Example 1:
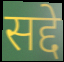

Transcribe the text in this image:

सद्दे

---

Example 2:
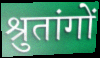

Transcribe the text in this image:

श्रुतांगों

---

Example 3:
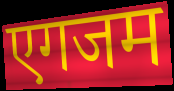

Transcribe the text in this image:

एगजम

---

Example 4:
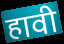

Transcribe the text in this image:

हावी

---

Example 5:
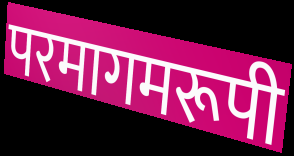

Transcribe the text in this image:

परमागमरूपी